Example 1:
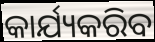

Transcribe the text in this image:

କାର୍ଯ୍ୟକରିବ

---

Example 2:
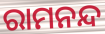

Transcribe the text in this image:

ରାମନନ୍ଦ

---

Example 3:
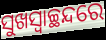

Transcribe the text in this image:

ସୁଖସ୍ୱାଚ୍ଛନ୍ଦରେ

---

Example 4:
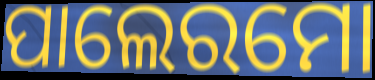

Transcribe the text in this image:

ପାଲେରମୋ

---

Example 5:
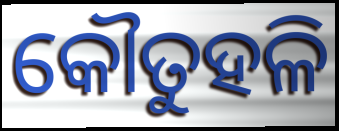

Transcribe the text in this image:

କୌତୁହଳି